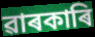
ৱাৰকাৰি